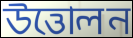
উত্তোলন